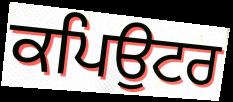
ਕਪਿਉਟਰ